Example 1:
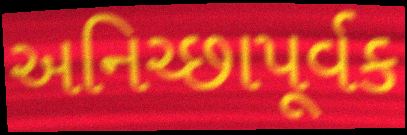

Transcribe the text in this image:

અનિચ્છાપૂર્વક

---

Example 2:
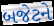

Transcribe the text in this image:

બજેટને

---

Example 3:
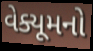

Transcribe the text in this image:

વેક્યૂમનો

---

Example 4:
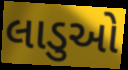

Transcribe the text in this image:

લાડુઓ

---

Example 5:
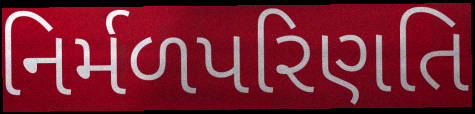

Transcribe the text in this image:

નિર્મળપરિણતિ